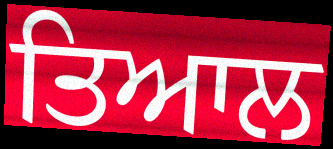
ਤਿਆਲ